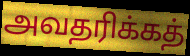
அவதரிக்கத்